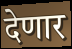
देणार